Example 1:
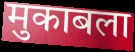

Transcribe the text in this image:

मुकाबला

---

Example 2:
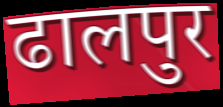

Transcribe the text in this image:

ढालपुर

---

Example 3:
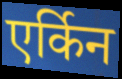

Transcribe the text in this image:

एर्किन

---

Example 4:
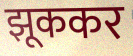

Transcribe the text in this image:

झूककर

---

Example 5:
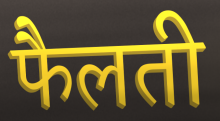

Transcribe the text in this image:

फैलती